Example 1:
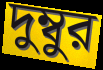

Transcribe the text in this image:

দুম্বুর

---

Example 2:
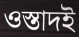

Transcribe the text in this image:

ওস্তাদই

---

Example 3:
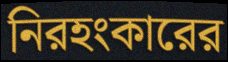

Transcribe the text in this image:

নিরহংকারের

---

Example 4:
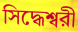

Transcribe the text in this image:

সিদ্ধেশ্বরী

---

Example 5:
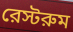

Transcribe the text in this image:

রেস্টরুম